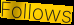
Follows